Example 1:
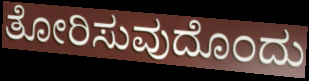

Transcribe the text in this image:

ತೋರಿಸುವುದೊಂದು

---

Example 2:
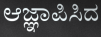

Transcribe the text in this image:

ಆಜ್ಞಾಪಿಸಿದ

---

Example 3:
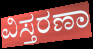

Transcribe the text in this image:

ವಿಸ್ತರಣಾ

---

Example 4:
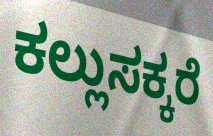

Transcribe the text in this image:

ಕಲ್ಲುಸಕ್ಕರೆ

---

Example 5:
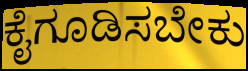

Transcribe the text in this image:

ಕೈಗೂಡಿಸಬೇಕು